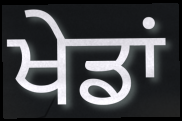
ਖੇਡਾਂ